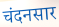
चंदनसार